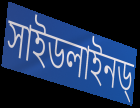
সাইডলাইনড্